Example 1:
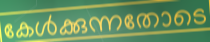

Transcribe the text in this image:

കേൾക്കുന്നതോടെ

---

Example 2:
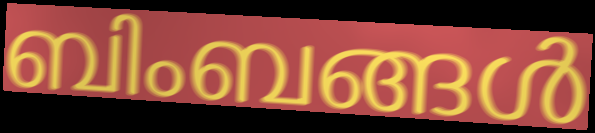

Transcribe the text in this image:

ബിംബങ്ങൾ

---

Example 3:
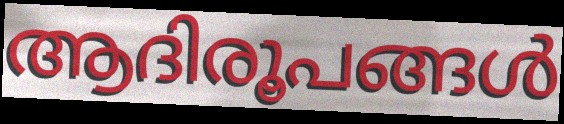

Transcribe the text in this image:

ആദിരൂപങ്ങൾ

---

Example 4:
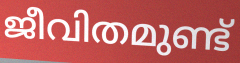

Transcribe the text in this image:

ജീവിതമുണ്ട്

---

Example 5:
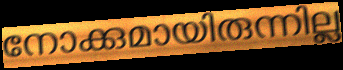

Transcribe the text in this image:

നോക്കുമായിരുന്നില്ല